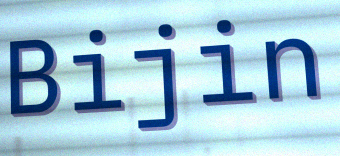
Bijin